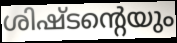
ശിഷ്ടന്റെയും